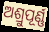
ଅଶ୍ରୁପୂର୍ଣ୍ଣ